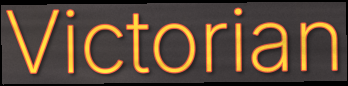
Victorian